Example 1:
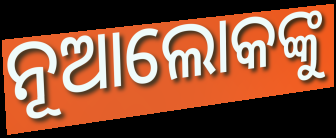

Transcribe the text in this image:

ନୂଆଲୋକଙ୍କୁ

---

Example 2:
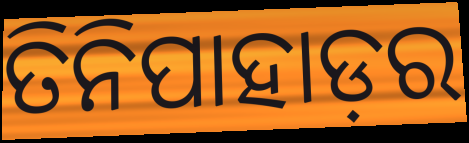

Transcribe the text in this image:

ତିନିପାହାଡ଼ର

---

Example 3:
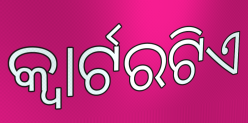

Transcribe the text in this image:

କ୍ୱାର୍ଟରଟିଏ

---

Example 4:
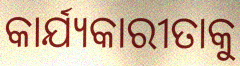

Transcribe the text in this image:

କାର୍ଯ୍ୟକାରୀତାକୁ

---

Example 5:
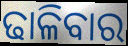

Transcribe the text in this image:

ଢାଳିବାର